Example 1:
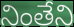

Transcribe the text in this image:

నింతేని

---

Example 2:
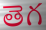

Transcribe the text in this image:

తెగ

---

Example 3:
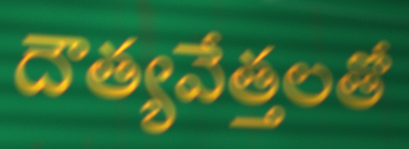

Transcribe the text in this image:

దౌత్యవేత్తలతో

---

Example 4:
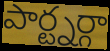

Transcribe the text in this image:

పార్ట్నర్గా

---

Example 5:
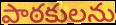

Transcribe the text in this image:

పాఠకులను